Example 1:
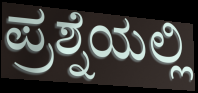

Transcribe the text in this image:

ಪ್ರಶ್ನೆಯಲ್ಲಿ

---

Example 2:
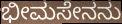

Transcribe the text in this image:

ಭೀಮಸೇನನು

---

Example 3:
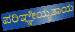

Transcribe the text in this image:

ಪರಿಞ್ಞೇಯ್ಯತಾಯ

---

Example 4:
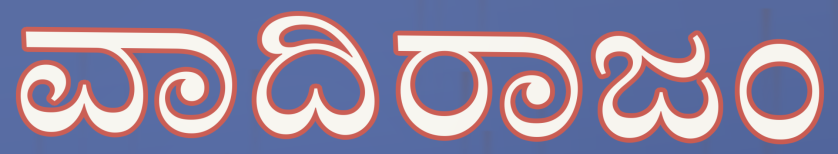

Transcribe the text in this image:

ವಾದಿರಾಜಂ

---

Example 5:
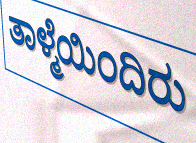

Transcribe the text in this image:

ತಾಳ್ಮೆಯಿಂದಿರು